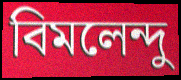
বিমলেন্দু